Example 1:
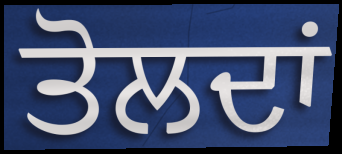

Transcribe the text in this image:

ਤੋਲਦਾਂ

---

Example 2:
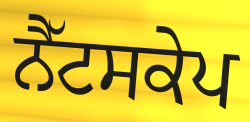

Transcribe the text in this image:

ਨੈੱਟਸਕੇਪ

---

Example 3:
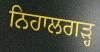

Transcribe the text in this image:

ਨਿਹਾਲਗੜ੍ਹ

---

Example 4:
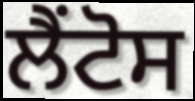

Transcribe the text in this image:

ਲੈਂਟੋਸ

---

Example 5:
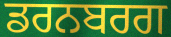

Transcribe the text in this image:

ਡਰਨਬਰਗ